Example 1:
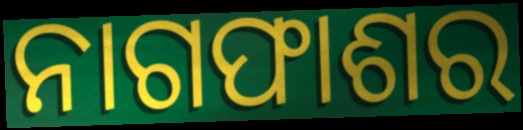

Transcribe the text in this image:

ନାଗଫାଶର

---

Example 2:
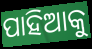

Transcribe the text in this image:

ପାହିଆକୁ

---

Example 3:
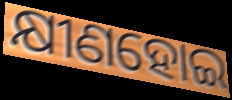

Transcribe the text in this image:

କ୍ଷୀଣହୋଇ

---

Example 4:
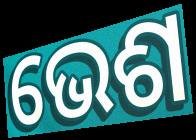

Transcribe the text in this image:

ଭେଶ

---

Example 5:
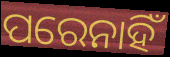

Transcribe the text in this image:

ପରେନାହିଁ